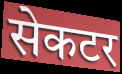
सेकटर